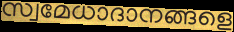
സ്വമേധാദാനങ്ങളെ